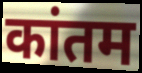
कांतम